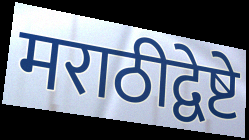
मराठीद्वेष्टे